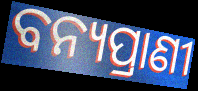
ବନ୍ୟପ୍ରାଣୀ